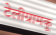
टेलीग्रामकू